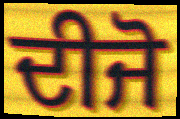
ਦੀਜੋ